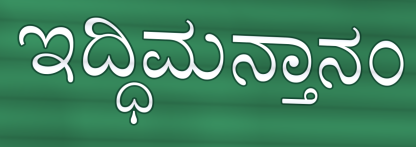
ಇದ್ಧಿಮನ್ತಾನಂ